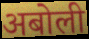
अबोली